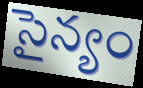
సైన్యం